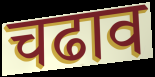
चढाव